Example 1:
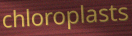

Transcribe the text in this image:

chloroplasts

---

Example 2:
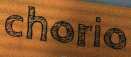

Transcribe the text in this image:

chorio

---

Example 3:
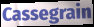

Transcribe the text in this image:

Cassegrain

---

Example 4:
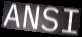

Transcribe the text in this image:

ANSI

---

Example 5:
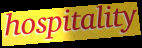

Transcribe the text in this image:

hospitality